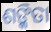
ଶଙ୍କିତା